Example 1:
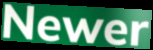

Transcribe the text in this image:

Newer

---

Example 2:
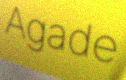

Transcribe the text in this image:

Agade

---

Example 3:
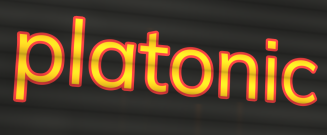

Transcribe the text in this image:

platonic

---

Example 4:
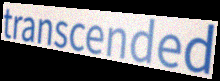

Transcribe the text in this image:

transcended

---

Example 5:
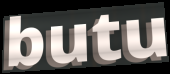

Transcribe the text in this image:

butu